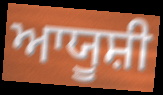
ਆਯੂਸ਼ੀ